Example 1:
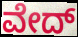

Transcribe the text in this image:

ವೇದ್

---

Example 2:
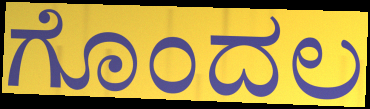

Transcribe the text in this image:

ಗೊಂದಲ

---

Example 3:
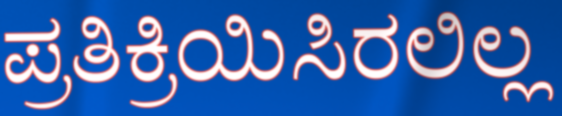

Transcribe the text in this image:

ಪ್ರತಿಕ್ರಿಯಿಸಿರಲಿಲ್ಲ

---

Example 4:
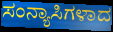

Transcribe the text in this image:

ಸಂನ್ಯಾಸಿಗಳಾದ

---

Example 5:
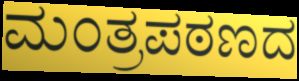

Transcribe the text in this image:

ಮಂತ್ರಪಠಣದ